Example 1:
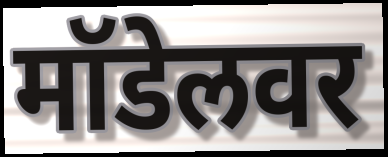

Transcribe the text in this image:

मॉडेलवर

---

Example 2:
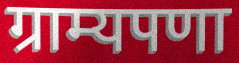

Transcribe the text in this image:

ग्राम्यपणा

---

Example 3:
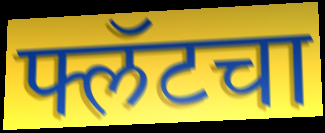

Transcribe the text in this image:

फ्लॅटचा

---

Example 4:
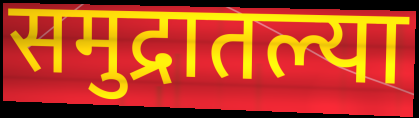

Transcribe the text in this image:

समुद्रातल्या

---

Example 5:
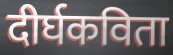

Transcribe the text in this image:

दीर्घकविता